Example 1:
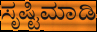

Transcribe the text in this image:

ಸೃಷ್ಟಿಮಾಡಿ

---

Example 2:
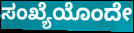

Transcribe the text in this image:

ಸಂಖ್ಯೆಯೊಂದೇ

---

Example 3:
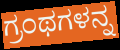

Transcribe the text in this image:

ಗ್ರಂಥಗಳನ್ನ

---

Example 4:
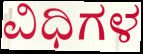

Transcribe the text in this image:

ವಿಧಿಗಳ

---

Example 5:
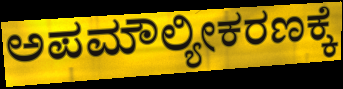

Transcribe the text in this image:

ಅಪಮೌಲ್ಯೀಕರಣಕ್ಕೆ